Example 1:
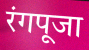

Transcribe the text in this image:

रंगपूजा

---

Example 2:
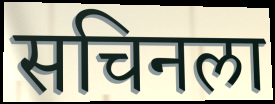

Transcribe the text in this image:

सचिनला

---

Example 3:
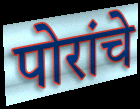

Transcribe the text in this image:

पोरांचे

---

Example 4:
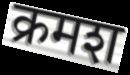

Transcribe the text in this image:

क्रमश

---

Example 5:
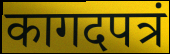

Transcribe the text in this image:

कागदपत्रं